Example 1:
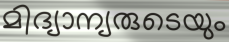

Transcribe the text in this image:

മിദ്യാന്യരുടെയും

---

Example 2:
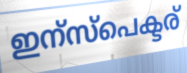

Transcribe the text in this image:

ഇന്സ്പെക്ടര്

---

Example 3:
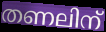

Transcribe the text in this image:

തണലിന്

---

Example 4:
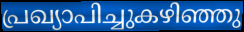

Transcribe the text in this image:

പ്രഖ്യാപിച്ചുകഴിഞ്ഞു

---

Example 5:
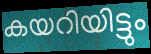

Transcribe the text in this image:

കയറിയിട്ടും